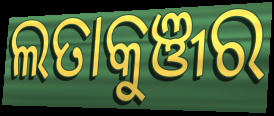
ଲତାକୁଞ୍ଜର